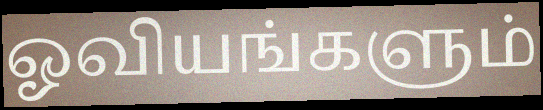
ஓவியங்களும்